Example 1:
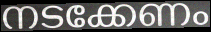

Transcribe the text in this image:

നടക്കേണം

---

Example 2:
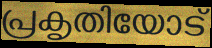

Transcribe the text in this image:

പ്രകൃതിയോട്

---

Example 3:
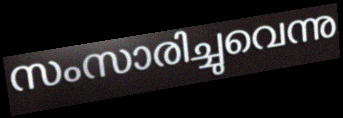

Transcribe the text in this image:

സംസാരിച്ചുവെന്നു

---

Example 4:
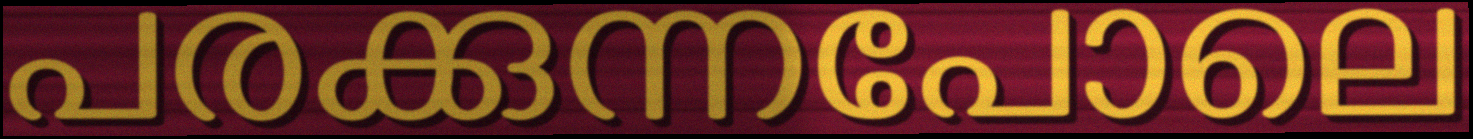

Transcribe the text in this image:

പരക്കുന്നപോലെ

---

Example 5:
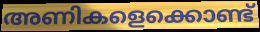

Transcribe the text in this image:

അണികളെക്കൊണ്ട്